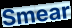
Smear